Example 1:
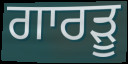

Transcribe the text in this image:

ਗਾਰੜੂ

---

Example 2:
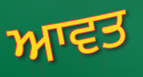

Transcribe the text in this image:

ਆਵਤ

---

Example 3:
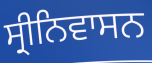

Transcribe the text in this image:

ਸ੍ਰੀਨਿਵਾਸਨ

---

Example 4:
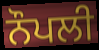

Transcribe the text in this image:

ਨੌਪਲੀ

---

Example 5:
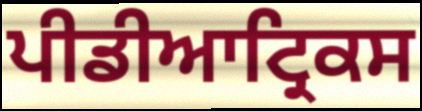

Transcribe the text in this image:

ਪੀਡੀਆਟ੍ਰਿਕਸ